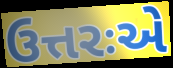
ઉત્તરઃએ